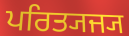
ਪਰਿਤ੍ਯਜ੍ਯ